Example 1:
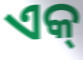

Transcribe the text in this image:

ଏକ୍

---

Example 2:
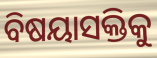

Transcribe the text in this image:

ବିଷୟାସକ୍ତିକୁ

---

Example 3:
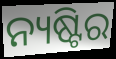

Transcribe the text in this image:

ନ୍ୟଷ୍ଟିର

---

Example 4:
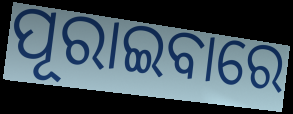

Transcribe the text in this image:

ପୂରାଇବାରେ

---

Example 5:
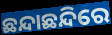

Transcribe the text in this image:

ଛନ୍ଦାଛନ୍ଦିରେ